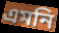
এমনি